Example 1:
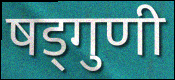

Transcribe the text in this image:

षड्गुणी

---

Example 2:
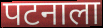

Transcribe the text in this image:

पटनाला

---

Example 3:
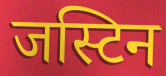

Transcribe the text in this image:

जस्टिन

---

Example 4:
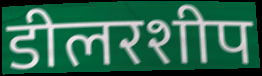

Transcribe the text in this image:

डीलरशीप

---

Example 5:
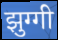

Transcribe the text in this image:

झुग्गी